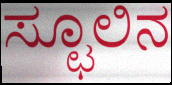
ಸ್ಟೂಲಿನ